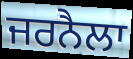
ਜਰਨੈਲਾ